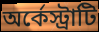
অর্কেস্ট্রাটি